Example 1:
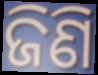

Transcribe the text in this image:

ଜିଣି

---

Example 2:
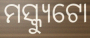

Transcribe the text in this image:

ମସ୍କ୍ୟୁଟୋ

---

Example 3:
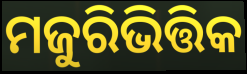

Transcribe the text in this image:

ମଜୁରିଭିତ୍ତିକ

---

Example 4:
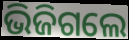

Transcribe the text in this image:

ଭିଜିଗଲେ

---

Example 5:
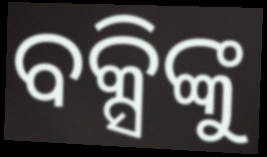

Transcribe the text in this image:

ବକ୍ସିଙ୍କୁ